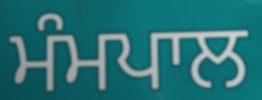
ਮੰਮਪਾਲ